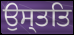
ਉਸ੍ਤਤਿ